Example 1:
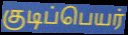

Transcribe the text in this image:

குடிப்பெயர்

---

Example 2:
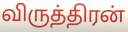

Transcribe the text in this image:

விருத்திரன்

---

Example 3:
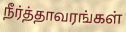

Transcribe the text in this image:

நீர்த்தாவரங்கள்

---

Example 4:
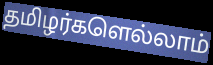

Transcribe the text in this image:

தமிழர்களெல்லாம்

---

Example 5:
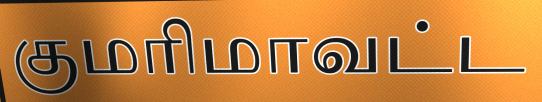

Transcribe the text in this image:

குமரிமாவட்ட